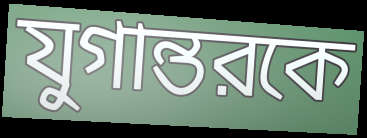
যুগান্তরকে